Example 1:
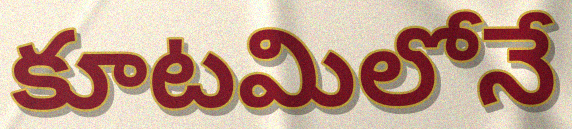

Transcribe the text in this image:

కూటమిలోనే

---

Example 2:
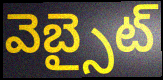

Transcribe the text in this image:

వెబ్సైట్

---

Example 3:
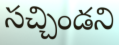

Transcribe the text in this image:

సచ్చిండని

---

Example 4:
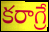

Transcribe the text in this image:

కరాగ్రే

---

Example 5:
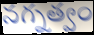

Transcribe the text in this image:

నగ్నత్వం